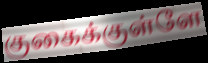
குகைக்குள்ளே